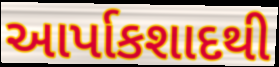
આર્પાકશાદથી